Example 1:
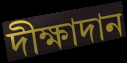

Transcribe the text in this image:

দীক্ষাদান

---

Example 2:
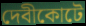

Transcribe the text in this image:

দেবীকোটে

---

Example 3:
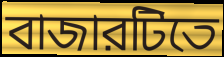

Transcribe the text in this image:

বাজারটিতে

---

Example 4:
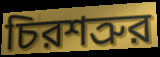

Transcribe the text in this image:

চিরশত্রুর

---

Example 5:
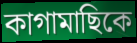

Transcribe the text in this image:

কাগামাছিকে